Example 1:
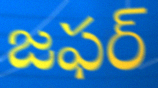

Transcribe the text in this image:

జఫర్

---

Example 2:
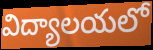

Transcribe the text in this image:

విద్యాలయలో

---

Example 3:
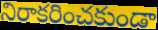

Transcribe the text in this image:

నిరాకరించకుండా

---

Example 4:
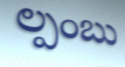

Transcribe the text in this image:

ల్పంబు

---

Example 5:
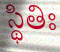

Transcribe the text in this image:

స్థితిః